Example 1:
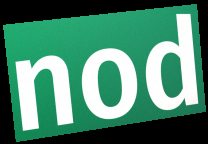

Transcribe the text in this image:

nod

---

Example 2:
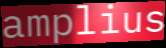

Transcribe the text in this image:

amplius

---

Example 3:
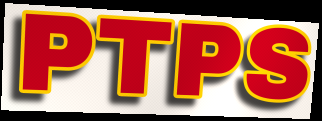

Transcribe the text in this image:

PTPS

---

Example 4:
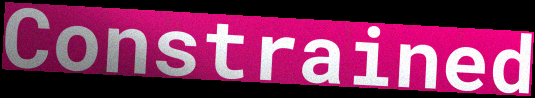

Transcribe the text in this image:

Constrained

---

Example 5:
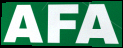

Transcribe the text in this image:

AFA